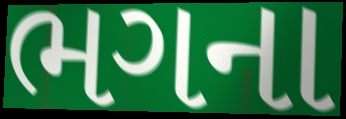
ભગના